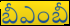
బీఎంబీ